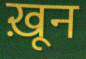
ख़ून